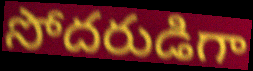
సోదరుడిగా